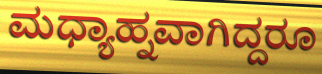
ಮಧ್ಯಾಹ್ನವಾಗಿದ್ದರೂ